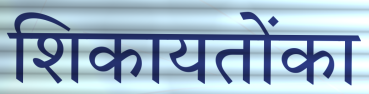
शिकायतोंका